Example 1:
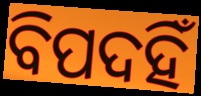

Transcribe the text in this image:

ବିପଦହିଁ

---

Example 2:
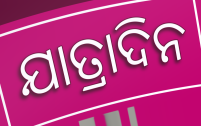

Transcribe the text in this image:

ଯାତ୍ରାଦିନ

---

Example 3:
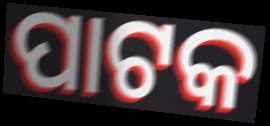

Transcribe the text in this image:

ପାଟକ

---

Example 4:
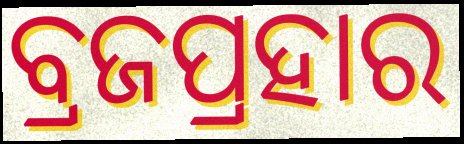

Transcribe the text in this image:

ବ୍ରଜପ୍ରହାର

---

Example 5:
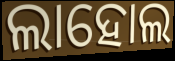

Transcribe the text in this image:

ଲାହୋଲ